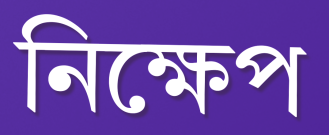
নিক্ষেপ